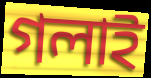
গলাই